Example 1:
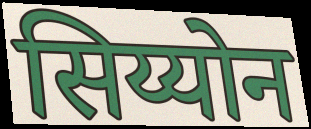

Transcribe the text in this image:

सिय्योन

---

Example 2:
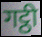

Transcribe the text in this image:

गट्ठी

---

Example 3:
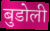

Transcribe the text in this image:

बुडोली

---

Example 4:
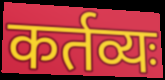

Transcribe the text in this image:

कर्तव्यः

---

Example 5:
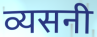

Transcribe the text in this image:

व्यसनी